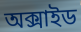
অক্সাইড